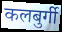
कलबुर्गी